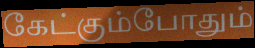
கேட்கும்போதும்